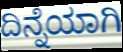
ದಿನ್ನೆಯಾಗಿ